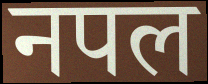
नपल